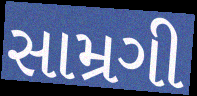
સામ્રગી